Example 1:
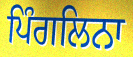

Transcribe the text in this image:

ਪਿੰਗਲਿਨਾ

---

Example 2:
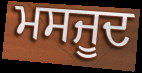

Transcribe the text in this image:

ਮਸਜੂਦ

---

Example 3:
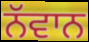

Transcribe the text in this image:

ਨੱਵਾਨ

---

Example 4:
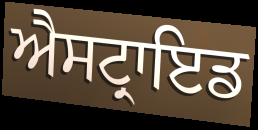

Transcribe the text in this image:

ਐਸਟ੍ਰਾਇਡ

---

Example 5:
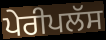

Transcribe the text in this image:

ਪੇਰੀਪਲੱਸ